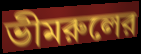
ভীমরুলের